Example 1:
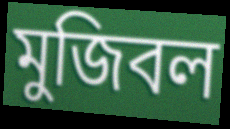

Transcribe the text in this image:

মুজিবল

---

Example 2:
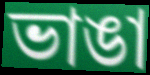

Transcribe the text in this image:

ভাঙা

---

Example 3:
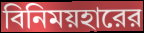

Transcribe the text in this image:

বিনিময়হারের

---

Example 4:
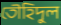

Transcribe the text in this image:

তৌহিদুল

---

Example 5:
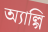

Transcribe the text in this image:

অ্যাল্গি